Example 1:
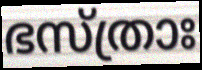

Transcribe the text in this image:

ഭസ്ത്രാഃ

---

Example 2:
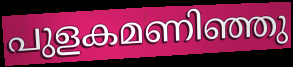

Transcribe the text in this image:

പുളകമണിഞ്ഞു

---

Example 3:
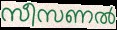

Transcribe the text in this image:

സീസണൽ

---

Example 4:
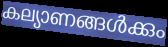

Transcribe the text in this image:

കല്യാണങ്ങൾക്കും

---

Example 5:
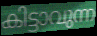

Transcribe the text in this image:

കിട്ടാവുന്ന